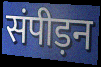
संपीड़न